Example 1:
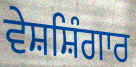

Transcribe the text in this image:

ਵੇਸ਼ਸ਼ਿੰਗਾਰ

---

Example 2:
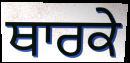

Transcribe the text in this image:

ਥਾਰਕੇ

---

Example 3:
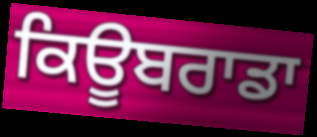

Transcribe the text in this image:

ਕਿਊਬਰਾਡਾ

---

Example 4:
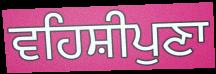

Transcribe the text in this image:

ਵਹਿਸ਼ੀਪੁਣਾ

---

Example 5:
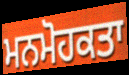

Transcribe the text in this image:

ਮਨਮੋਹਕਤਾ